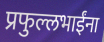
प्रफुल्लभाईंना